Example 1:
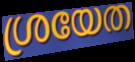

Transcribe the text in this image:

ശ്രയേത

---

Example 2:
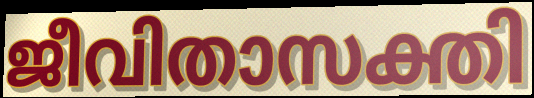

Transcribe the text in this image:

ജീവിതാസക്തി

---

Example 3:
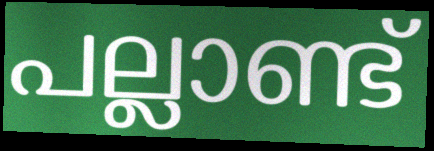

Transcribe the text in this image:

പല്ലാണ്ട്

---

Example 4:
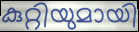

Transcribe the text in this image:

കുറ്റിയുമായി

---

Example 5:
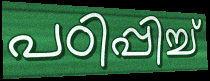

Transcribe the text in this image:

പഠിപ്പിച്ച്